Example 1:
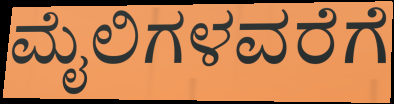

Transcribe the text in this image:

ಮೈಲಿಗಳವರೆಗೆ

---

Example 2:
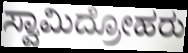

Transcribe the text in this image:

ಸ್ವಾಮಿದ್ರೋಹರು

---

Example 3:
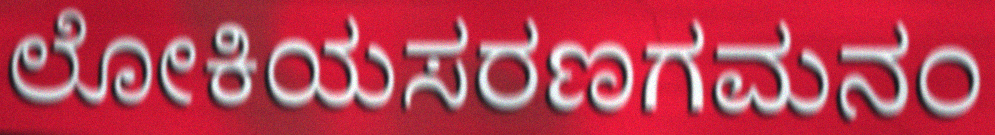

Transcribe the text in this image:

ಲೋಕಿಯಸರಣಗಮನಂ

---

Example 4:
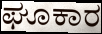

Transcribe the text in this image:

ಘೂಕಾರ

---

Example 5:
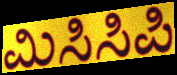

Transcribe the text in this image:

ಮಿಸಿಸಿಪಿ